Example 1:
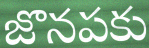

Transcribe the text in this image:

జొనపకు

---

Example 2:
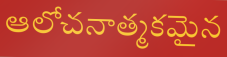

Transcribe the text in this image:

ఆలోచనాత్మకమైన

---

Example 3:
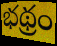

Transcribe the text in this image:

భథ్రం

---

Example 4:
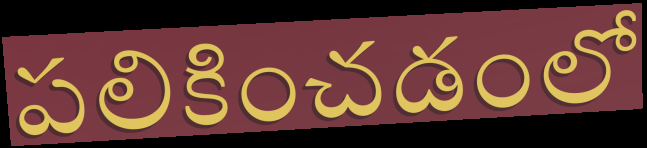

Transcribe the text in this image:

పలికించడంలో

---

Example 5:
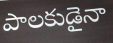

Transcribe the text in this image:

పాలకుడైనా